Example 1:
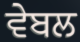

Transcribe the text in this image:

ਵੇਬਲ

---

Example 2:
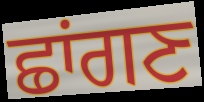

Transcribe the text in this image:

ਛਾਂਗਣ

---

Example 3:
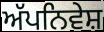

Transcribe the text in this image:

ਅੱਪਨਿਵੇਸ਼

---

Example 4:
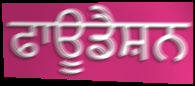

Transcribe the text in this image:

ਫਾਊਡੈਸ਼ਨ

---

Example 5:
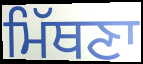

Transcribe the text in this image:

ਮਿੱਥਣਾ